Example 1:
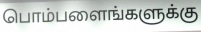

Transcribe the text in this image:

பொம்பளைங்களுக்கு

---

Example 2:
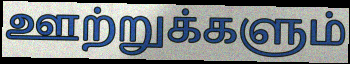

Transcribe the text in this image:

ஊற்றுக்களும்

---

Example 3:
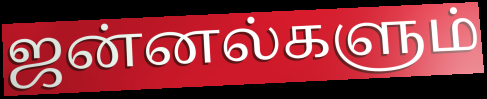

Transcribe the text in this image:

ஜன்னல்களும்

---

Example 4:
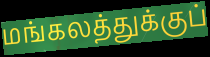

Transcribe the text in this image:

மங்கலத்துக்குப்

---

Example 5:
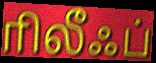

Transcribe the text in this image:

ரிலீஃப்